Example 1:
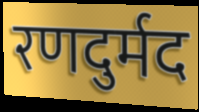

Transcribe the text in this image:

रणदुर्मद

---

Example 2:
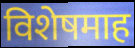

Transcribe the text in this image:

विशेषमाह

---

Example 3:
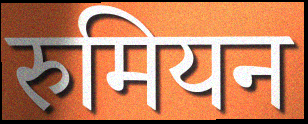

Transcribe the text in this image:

रुमियन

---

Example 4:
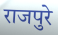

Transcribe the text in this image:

राजपुरे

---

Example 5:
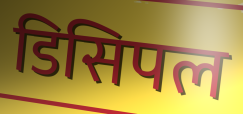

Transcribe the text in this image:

डिसिपल